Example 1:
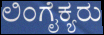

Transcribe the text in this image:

ಲಿಂಗೈಕ್ಯರು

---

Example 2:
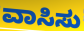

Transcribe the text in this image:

ವಾಸಿಸು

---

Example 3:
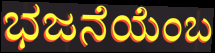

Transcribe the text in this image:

ಭಜನೆಯೆಂಬ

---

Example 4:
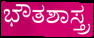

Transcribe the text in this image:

ಭೌತಶಾಸ್ತ್ರ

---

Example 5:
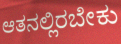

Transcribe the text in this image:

ಆತನಲ್ಲಿರಬೇಕು